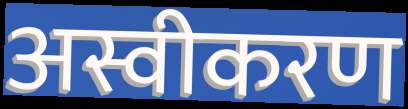
अस्वीकरण